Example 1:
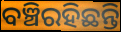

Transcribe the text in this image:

ବଞ୍ଚିରହିଛନ୍ତି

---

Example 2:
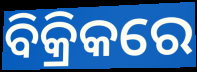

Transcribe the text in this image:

ବିକ୍ରିକରେ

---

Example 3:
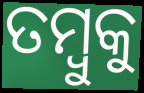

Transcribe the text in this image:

ତମ୍ବୁକୁ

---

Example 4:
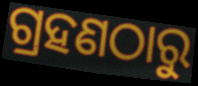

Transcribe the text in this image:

ଗ୍ରହଣଠାରୁ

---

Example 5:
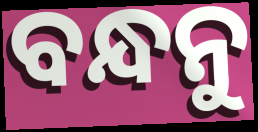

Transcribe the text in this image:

ବନ୍ଧନୁ